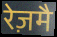
रेज़मै